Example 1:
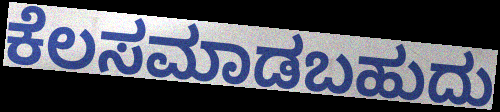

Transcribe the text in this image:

ಕೆಲಸಮಾಡಬಹುದು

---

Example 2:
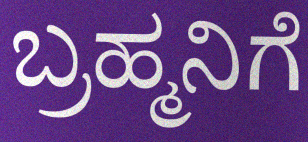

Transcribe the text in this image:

ಬ್ರಹ್ಮನಿಗೆ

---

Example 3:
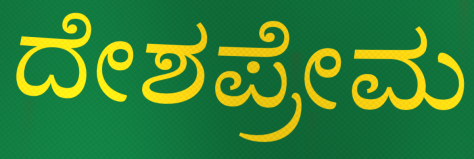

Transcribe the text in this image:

ದೇಶಪ್ರೇಮ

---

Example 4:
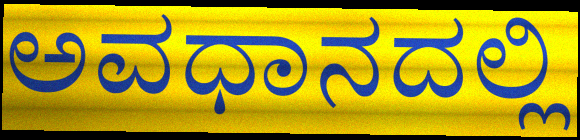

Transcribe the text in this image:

ಅವಧಾನದಲ್ಲಿ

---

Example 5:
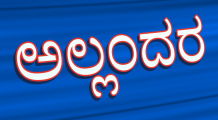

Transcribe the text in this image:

ಅಲ್ಲಂದರ